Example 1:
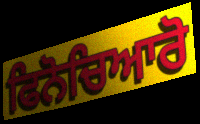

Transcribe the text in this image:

ਫਿਨੋਚਿਆਰੋ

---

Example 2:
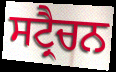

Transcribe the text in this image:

ਸਟ੍ਰੈਚਨ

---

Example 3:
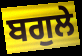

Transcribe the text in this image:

ਬਗੁਲੇ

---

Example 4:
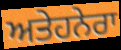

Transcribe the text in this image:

ਅਤੇਹਨੇਰਾ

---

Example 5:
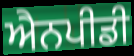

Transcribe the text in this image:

ਐਨਪੀਡੀ